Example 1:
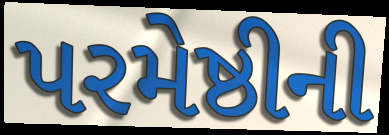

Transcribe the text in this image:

પરમેષ્ઠીની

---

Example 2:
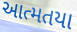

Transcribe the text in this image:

આત્મતયા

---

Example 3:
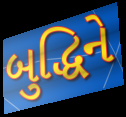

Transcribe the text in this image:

બુદ્ધિને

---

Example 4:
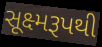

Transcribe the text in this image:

સૂક્ષ્મરૂપથી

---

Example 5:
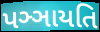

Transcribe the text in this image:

પઞ્ઞાયતિ